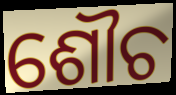
ଶୌଚ